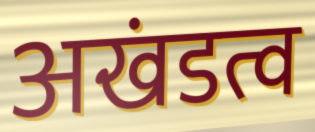
अखंडत्व